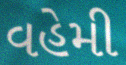
વહેમી